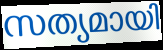
സത്യമായി